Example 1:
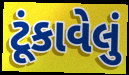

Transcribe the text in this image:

ટૂંકાવેલું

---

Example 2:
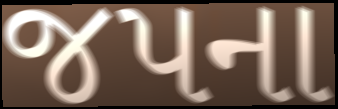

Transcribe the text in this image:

જપના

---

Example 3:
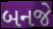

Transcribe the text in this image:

બનજે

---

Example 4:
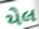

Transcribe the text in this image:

યેલ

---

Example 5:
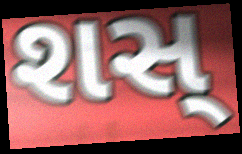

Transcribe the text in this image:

શસ્